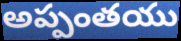
అప్పంతయు